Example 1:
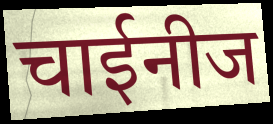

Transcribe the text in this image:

चाईनीज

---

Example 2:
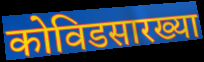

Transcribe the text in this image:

कोविडसारख्या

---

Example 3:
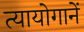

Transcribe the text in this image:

त्यायोगानें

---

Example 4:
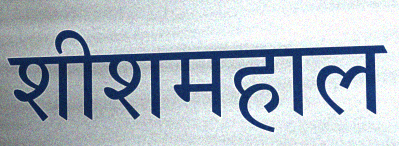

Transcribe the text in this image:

शीशमहाल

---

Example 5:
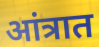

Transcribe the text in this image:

आंत्रात